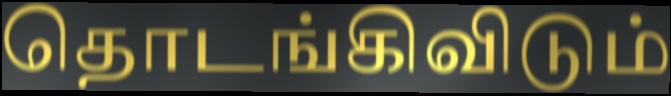
தொடங்கிவிடும்